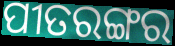
ପୀତରଙ୍ଗର